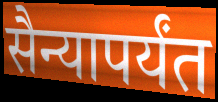
सैन्यापर्यंत